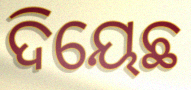
ଦିୟେଛ